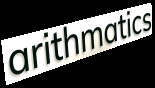
arithmatics